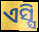
ଏସ୍ସି